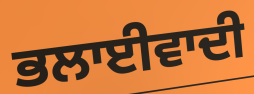
ਭਲਾਈਵਾਦੀ